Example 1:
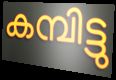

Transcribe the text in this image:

കമ്പിട്ടു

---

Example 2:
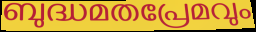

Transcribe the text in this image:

ബുദ്ധമതപ്രേമവും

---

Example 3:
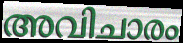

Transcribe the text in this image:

അവിചാരം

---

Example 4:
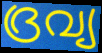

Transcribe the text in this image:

ദ്രവ്യ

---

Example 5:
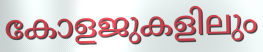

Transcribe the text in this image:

കോളജുകളിലും